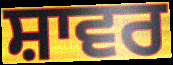
ਸ਼ਾਵਰ